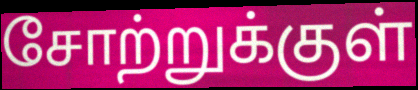
சோற்றுக்குள்